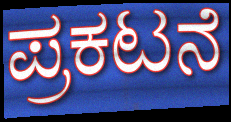
ಪ್ರಕಟನೆ